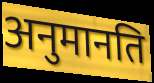
अनुमानति